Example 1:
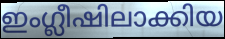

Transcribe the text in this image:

ഇംഗ്ലീഷിലാക്കിയ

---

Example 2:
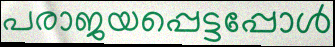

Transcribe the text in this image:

പരാജയപ്പെട്ടപ്പോൾ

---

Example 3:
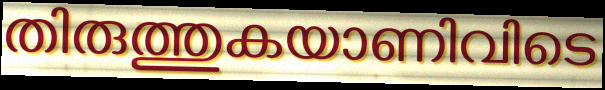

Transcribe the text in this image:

തിരുത്തുകയാണിവിടെ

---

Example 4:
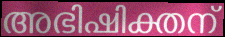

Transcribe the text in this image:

അഭിഷിക്തന്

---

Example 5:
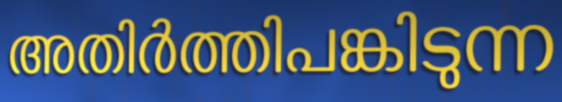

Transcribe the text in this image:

അതിർത്തിപങ്കിടുന്ന